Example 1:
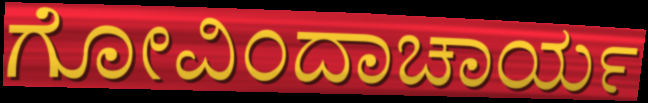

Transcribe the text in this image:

ಗೋವಿಂದಾಚಾರ್ಯ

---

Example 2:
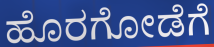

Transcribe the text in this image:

ಹೊರಗೋಡೆಗೆ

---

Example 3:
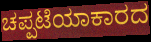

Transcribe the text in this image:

ಚಪ್ಪಟೆಯಾಕಾರದ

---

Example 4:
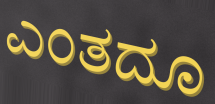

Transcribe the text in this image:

ಎಂತದೂ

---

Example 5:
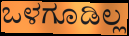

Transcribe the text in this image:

ಒಳಗೂಡಿಲ್ಲ